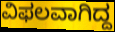
ವಿಫಲವಾಗಿದ್ದ